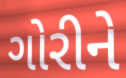
ગોરીને